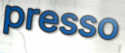
presso